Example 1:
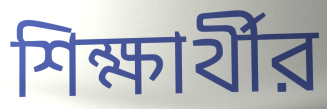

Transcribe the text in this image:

শিক্ষার্থীর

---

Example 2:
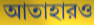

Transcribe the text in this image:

আতাহারও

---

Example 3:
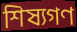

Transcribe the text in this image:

শিষ্যগণ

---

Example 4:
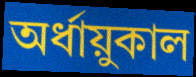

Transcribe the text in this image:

অর্ধায়ুকাল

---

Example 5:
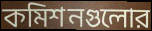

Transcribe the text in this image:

কমিশনগুলোর